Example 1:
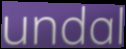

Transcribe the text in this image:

undal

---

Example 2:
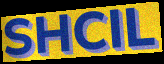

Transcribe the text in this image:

SHCIL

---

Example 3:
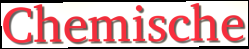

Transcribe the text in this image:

Chemische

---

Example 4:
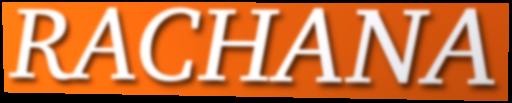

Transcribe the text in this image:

RACHANA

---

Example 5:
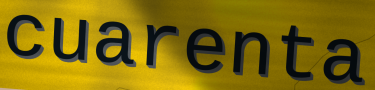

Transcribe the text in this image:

cuarenta